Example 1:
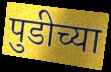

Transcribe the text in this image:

पुडीच्या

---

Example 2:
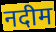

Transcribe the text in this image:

नदीम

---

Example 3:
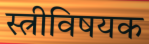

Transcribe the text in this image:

स्त्रीविषयक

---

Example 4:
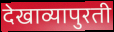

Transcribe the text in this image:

देखाव्यापुरती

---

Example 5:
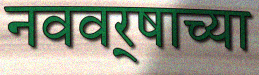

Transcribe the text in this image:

नववर्षाच्या